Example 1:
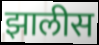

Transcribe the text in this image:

झालीस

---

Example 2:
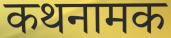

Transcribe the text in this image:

कथनामक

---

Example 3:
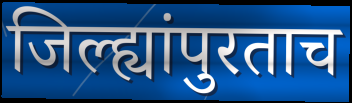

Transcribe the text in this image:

जिल्ह्यांपुरताच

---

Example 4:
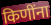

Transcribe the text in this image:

किणींना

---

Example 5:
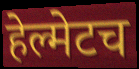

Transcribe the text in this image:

हेल्मेटच